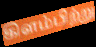
கிளம்பிற்று